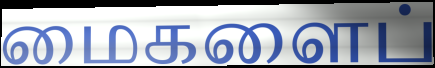
மைகளைப்